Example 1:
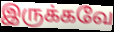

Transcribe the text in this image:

இருக்கவே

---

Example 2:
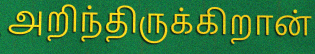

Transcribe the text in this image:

அறிந்திருக்கிறான்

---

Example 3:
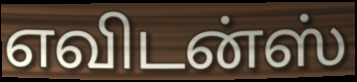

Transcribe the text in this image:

எவிடன்ஸ்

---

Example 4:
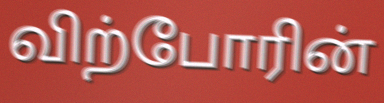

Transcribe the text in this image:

விற்போரின்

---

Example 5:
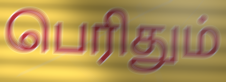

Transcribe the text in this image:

பெரிதும்